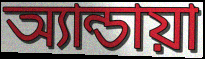
অ্যান্ডায়া